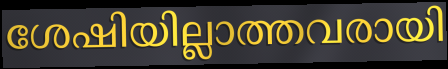
ശേഷിയില്ലാത്തവരായി